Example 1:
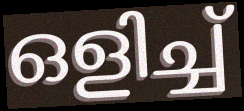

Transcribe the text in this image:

ഒളിച്ച്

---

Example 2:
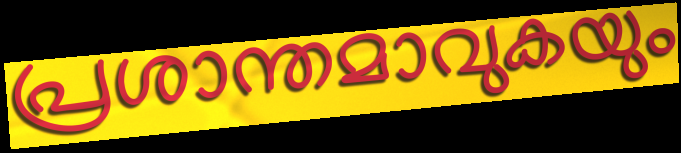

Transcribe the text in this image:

പ്രശാന്തമാവുകയും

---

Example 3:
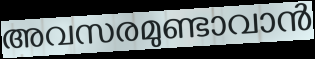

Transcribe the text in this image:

അവസരമുണ്ടാവാൻ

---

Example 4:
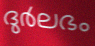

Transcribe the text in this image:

ദുർലഭം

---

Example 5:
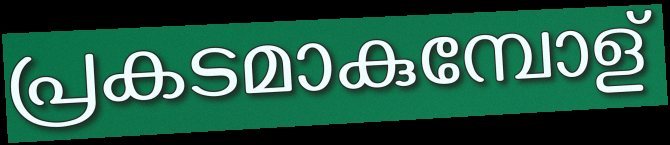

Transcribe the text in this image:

പ്രകടമാകുമ്പോള്